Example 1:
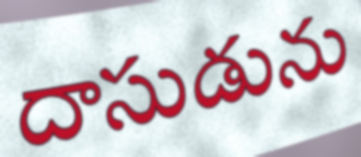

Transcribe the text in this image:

దాసుడును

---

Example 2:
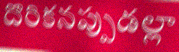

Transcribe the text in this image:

దొరికనప్పుడల్లా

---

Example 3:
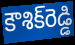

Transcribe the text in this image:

కౌశిక్‌రెడ్డి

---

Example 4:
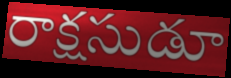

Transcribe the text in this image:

రాక్షసుడూ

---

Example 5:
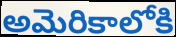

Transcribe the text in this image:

అమెరికాలోకి